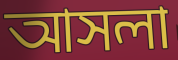
আসলা